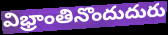
విభ్రాంతినొందుదురు